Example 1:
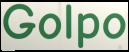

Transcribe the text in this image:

Golpo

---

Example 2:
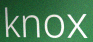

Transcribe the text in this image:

knox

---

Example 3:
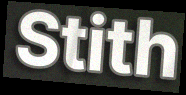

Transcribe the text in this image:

Stith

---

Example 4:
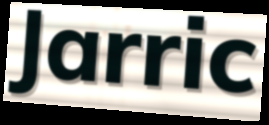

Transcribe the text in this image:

Jarric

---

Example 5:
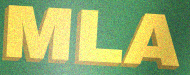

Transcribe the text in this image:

MLA